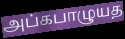
அப்கபாழுயத